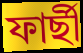
ফাৰ্ছী